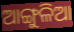
ଆଙ୍ଗୁଳିଆ